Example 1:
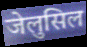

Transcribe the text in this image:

जेलुसिल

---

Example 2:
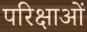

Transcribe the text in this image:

परिक्षाओं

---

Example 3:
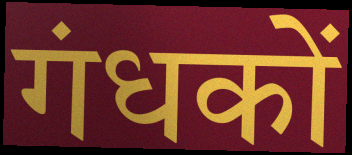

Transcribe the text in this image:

गंधकों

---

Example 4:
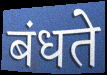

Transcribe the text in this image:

बंधते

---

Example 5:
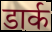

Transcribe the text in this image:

डार्क